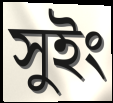
সুইং